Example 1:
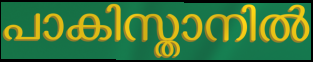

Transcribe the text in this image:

പാകിസ്താനിൽ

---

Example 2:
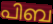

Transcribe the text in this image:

പിബ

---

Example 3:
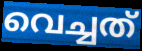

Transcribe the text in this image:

വെച്ചത്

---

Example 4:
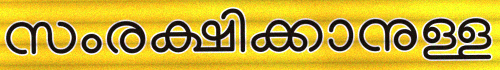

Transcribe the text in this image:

സംരക്ഷിക്കാനുള്ള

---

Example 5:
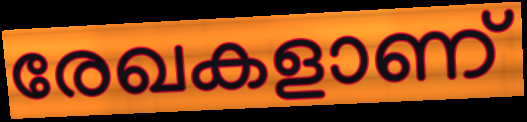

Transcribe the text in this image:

രേഖകളാണ്